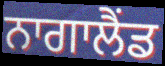
ਨਾਗਾਲੈਂਡ